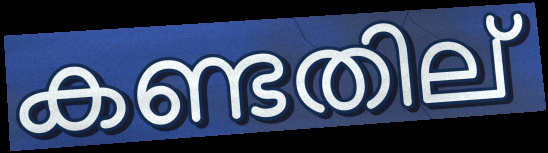
കണ്ടതില്